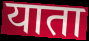
याता